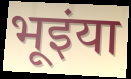
भूइंया